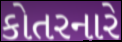
કોતરનારે